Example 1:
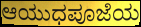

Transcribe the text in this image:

ಆಯುಧಪೂಜೆಯ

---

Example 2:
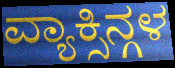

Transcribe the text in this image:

ವ್ಯಾಕ್ಸಿನ್ಗಳ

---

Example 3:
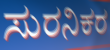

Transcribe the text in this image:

ಸುರನಿಕರ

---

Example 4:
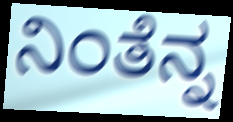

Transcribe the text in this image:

ನಿಂತೆನ್ನ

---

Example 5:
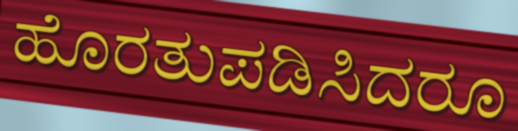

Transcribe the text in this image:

ಹೊರತುಪಡಿಸಿದರೂ